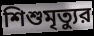
শিশুমৃত্যুর